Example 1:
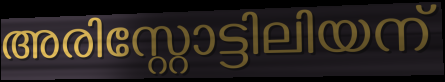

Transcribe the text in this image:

അരിസ്റ്റോട്ടിലിയന്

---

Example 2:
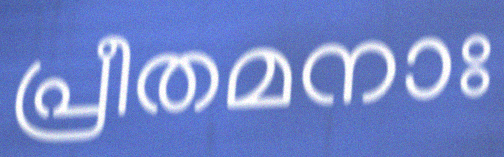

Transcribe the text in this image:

പ്രീതമനാഃ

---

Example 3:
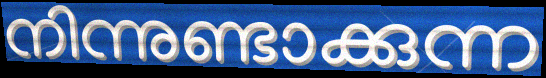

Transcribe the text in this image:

നിന്നുണ്ടാക്കുന്ന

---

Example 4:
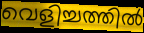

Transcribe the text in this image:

വെളിച്ചത്തിൽ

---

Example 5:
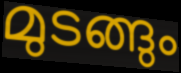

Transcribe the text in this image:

മുടങ്ങും